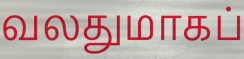
வலதுமாகப்